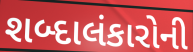
શબ્દાલંકારોની